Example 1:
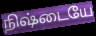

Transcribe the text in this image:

நிஷ்டையே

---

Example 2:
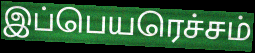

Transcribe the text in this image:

இப்பெயரெச்சம்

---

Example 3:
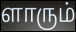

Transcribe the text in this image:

ளாரும்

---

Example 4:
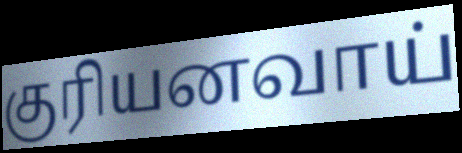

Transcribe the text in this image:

குரியனவாய்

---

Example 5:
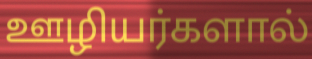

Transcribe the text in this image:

ஊழியர்களால்